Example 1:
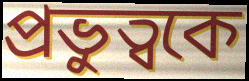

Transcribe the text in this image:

প্রভুত্বকে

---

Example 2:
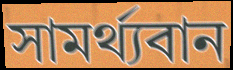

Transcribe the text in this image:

সামর্থ্যবান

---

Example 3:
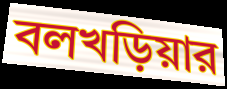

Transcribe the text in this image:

বলখড়িয়ার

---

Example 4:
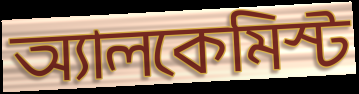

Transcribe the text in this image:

অ্যালকেমিস্ট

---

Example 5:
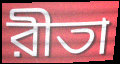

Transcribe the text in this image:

রীতা